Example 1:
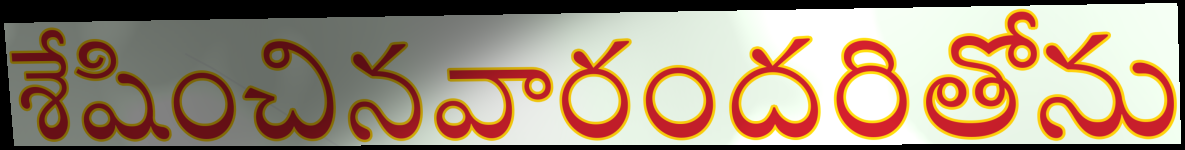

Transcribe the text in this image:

శేషించినవారందరితోను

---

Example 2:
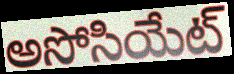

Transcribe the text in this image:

అసోసియేట్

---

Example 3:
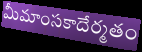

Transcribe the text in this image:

మీమాంసకాదేర్మతం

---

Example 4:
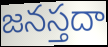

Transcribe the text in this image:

జనస్తదా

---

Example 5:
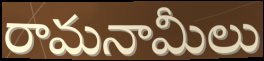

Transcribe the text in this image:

రామనామీలు